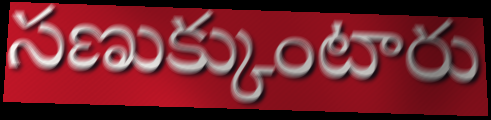
సణుక్కుంటారు